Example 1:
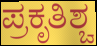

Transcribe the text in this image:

ಪ್ರಕೃತಿಶ್ಚ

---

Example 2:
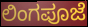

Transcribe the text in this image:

ಲಿಂಗಪೂಜೆ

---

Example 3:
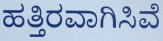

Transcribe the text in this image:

ಹತ್ತಿರವಾಗಿಸಿವೆ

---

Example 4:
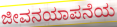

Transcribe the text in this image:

ಜೀವನಯಾಪನೆಯ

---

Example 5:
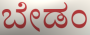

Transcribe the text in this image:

ಬೇಡಂ